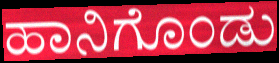
ಹಾನಿಗೊಂಡು